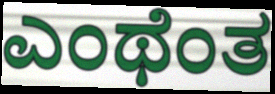
ಎಂಥೆಂತ